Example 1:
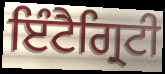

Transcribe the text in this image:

ਇੰਟੈਗ੍ਰਿਟੀ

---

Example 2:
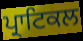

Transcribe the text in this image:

ਪ੍ਰਾਟਿਕਲ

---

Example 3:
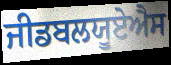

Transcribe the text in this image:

ਜੀਡਬਲਯੂਏਐਸ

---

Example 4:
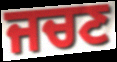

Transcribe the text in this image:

ਜਚਣ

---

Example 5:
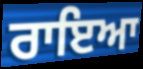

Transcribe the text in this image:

ਰਾਇਆ